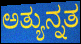
ಅತ್ಯುನ್ನತ